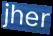
jher